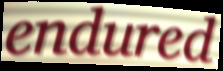
endured